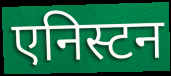
एनिस्टन